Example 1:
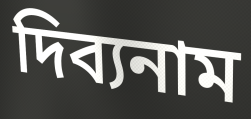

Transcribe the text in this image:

দিব্যনাম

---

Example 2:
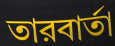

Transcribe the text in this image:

তারবার্তা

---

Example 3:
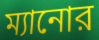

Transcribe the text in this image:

ম্যানোর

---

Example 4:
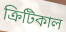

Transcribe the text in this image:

ক্রিটিকাল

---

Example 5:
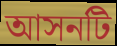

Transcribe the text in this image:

আসনটি